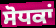
ਸੋਧਕਾਂ